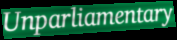
Unparliamentary